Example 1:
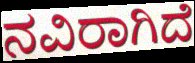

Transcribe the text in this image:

ನವಿರಾಗಿದೆ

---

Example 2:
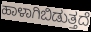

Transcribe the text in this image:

ಹಾಳಾಗಿಬಿಡುತ್ತದೆ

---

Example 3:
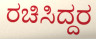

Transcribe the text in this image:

ರಚಿಸಿದ್ದರ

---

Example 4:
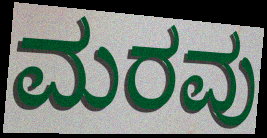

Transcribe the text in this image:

ಮರವು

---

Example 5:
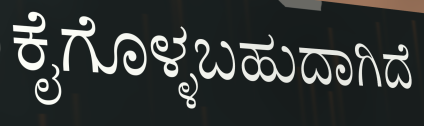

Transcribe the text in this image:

ಕೈಗೊಳ್ಳಬಹುದಾಗಿದೆ